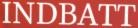
INDBATT